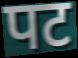
पट